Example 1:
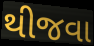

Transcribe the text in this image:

થીજવા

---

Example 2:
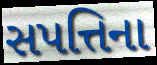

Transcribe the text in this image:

સપત્તિના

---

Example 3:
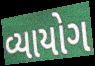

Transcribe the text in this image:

વ્યાયોગ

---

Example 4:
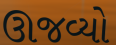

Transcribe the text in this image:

ઊજવ્યો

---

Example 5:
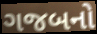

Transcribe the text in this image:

ગજબનો